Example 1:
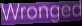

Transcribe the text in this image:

Wronged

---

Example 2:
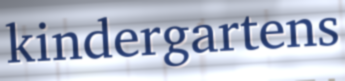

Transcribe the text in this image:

kindergartens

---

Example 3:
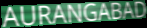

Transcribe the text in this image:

AURANGABAD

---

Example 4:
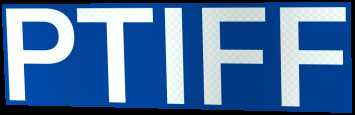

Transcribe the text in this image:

PTIFF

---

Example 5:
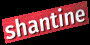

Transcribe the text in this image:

shantine